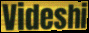
Videshi